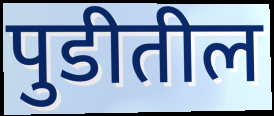
पुडीतील